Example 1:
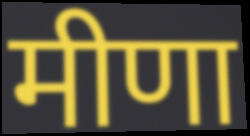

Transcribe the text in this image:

मीणा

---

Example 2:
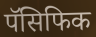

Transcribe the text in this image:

पॅसिफिक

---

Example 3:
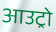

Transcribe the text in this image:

आउट्रो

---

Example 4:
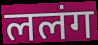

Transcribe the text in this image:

ललंग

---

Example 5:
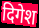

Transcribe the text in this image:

दिगेश